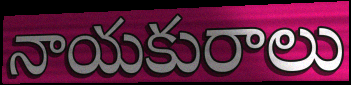
నాయకురాలు